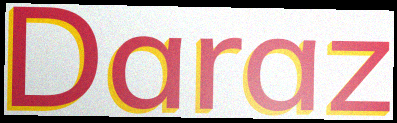
Daraz